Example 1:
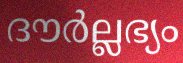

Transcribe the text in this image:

ദൗർല്ലഭ്യം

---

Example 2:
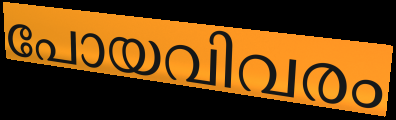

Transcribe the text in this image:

പോയവിവരം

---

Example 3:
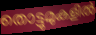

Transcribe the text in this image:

തൊട്ടുമുകളിൽ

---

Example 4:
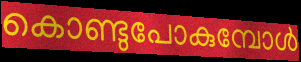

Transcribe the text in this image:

കൊണ്ടുപോകുമ്പോൾ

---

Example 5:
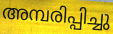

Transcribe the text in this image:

അമ്പരിപ്പിച്ചു